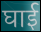
घाई